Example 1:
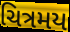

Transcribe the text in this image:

ચિત્રમય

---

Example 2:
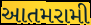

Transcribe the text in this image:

આતમરામી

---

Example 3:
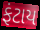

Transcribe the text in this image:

ફંટાય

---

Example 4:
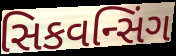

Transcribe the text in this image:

સિકવન્સિંગ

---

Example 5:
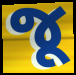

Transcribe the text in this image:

જૂ